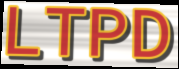
LTPD